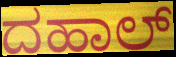
ದಹಾಲ್